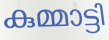
കുമ്മാട്ടി